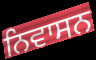
ਨਿਵਾਸਨ